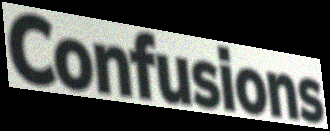
Confusions